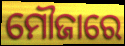
ମୌଜାରେ